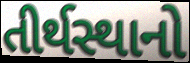
તીર્થસ્થાનો